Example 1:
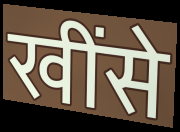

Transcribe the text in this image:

खींसे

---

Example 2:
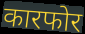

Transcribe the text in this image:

कारफोर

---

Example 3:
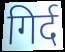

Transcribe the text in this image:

गिर्द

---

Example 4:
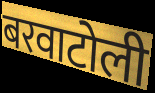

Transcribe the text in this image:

बरवाटोली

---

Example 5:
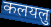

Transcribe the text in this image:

कलयलु